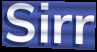
Sirr